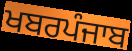
ਖਬਰਪੰਜਾਬ